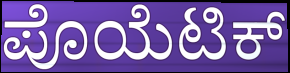
ಪೊಯೆಟಿಕ್